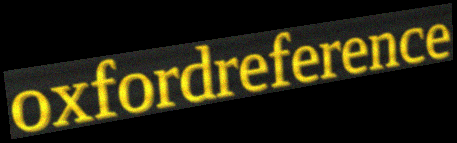
oxfordreference